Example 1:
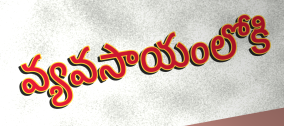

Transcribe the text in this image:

వ్యవసాయంలోకి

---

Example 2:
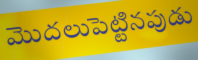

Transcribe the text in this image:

మొదలుపెట్టినపుడు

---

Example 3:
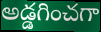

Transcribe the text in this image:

అడ్డగించగా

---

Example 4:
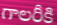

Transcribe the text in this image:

గాలరీకి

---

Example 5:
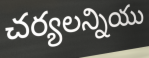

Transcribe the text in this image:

చర్యలన్నియు